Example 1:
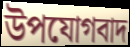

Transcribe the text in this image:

উপযোগবাদ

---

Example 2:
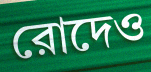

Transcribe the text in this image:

রোদেও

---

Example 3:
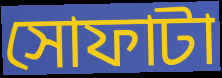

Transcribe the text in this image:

সোফাটা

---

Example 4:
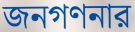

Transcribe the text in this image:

জনগণনার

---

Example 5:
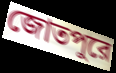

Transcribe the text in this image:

জোতপুরে